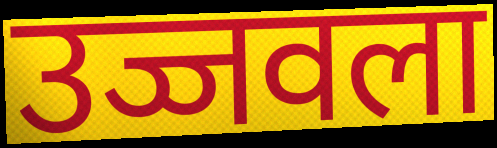
उज्जवला